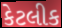
કેટલીક